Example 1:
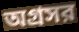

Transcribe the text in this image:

অগ্রসর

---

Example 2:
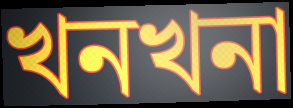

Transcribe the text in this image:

খনখনা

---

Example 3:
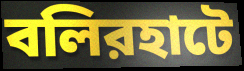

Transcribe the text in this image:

বলিরহাটে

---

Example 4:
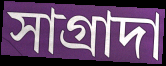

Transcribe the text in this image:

সাগ্রাদা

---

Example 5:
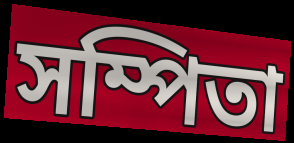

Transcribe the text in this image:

সম্পিতা